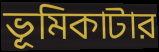
ভূমিকাটার